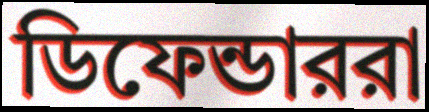
ডিফেন্ডাররা